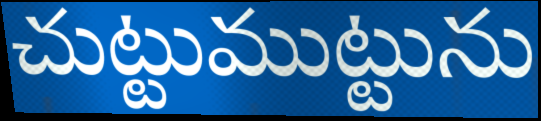
చుట్టుముట్టును